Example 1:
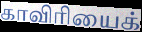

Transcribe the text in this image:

காவிரியைக்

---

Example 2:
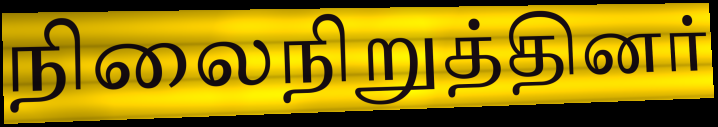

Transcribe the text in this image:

நிலைநிறுத்தினர்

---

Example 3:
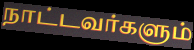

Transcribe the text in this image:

நாட்டவர்களும்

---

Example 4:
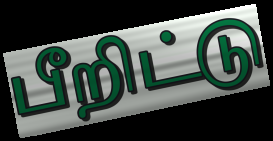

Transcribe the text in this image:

பீறிட்டு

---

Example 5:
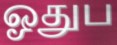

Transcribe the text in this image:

ஓதுப